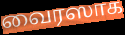
வைரஸாக